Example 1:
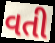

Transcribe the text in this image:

વતી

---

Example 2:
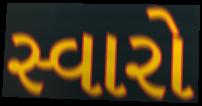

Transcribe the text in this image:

સ્વારો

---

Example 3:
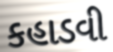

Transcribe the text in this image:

કહાડવી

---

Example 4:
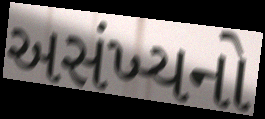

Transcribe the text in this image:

અસંખ્યનો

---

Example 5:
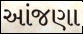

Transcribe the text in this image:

આંજણા